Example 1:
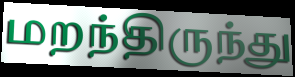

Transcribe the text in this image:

மறந்திருந்து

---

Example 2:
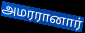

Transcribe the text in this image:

அமரரானார்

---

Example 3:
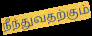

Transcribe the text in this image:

நீந்துவதற்கும்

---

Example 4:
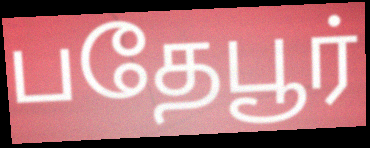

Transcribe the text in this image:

பதேபூர்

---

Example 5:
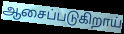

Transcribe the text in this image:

ஆசைப்படுகிறாய்